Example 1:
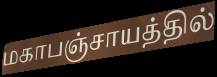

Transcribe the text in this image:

மகாபஞ்சாயத்தில்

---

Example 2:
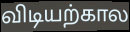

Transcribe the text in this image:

விடியற்கால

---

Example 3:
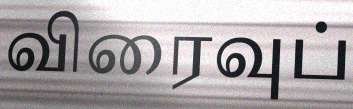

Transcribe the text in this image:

விரைவுப்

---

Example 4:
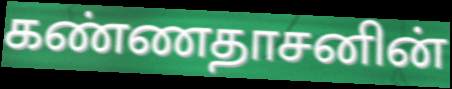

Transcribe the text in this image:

கண்ணதாசனின்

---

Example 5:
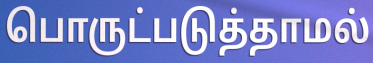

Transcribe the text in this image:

பொருட்படுத்தாமல்